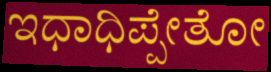
ಇಧಾಧಿಪ್ಪೇತೋ